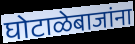
घोटाळेबाजांना